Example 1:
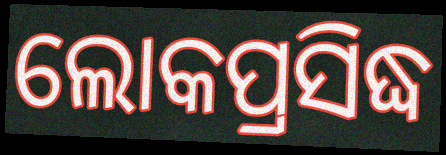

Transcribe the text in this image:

ଲୋକପ୍ରସିଦ୍ଧ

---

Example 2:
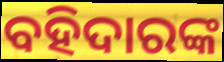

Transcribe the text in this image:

ବହିଦାରଙ୍କ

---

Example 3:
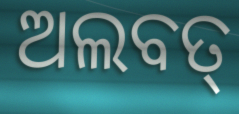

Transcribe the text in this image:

ଅଲବତ୍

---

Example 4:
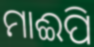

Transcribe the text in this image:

ମାଈପି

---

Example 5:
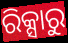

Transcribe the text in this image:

ରିକ୍ସାରୁ